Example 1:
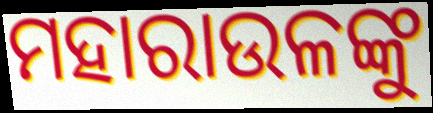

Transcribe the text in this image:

ମହାରାଉଳଙ୍କୁ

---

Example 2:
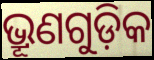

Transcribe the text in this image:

ଭ୍ରୂଣଗୁଡ଼ିକ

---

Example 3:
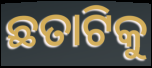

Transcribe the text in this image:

ଛତାଟିକୁ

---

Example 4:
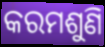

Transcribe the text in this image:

କରମଶୁଣି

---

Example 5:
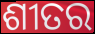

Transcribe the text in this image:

ଶୀତର